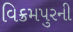
વિક્રમપુરની